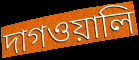
দাগওয়ালি